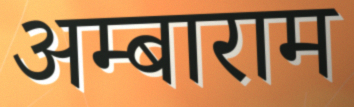
अम्बाराम